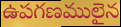
ఉపగణములైన